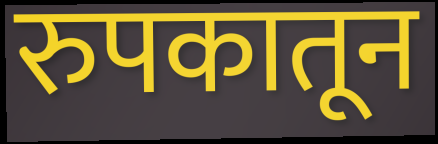
रुपकातून